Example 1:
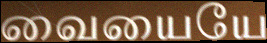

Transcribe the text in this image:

வையையே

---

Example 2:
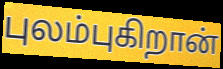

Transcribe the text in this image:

புலம்புகிறான்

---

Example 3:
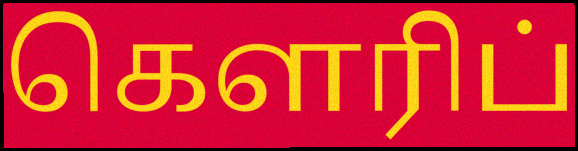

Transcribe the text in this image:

கௌரிப்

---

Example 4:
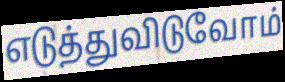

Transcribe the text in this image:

எடுத்துவிடுவோம்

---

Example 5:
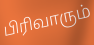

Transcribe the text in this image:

பிரிவாரும்